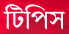
টিপিস